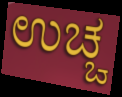
ಉಚ್ಚ